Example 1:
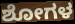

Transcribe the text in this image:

ಶೋಗಳ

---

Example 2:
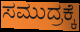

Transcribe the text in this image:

ಸಮುದ್ರಕ್ಕೆ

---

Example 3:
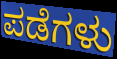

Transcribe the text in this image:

ಪಡೆಗಳು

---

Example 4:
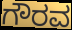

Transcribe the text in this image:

ಗೌರವ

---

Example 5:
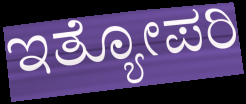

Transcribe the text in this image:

ಇತ್ಯೋಪರಿ